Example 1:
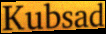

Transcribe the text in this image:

Kubsad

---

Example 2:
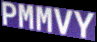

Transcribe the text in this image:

PMMVY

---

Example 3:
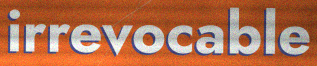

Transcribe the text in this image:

irrevocable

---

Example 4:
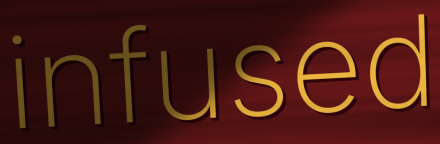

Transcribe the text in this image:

infused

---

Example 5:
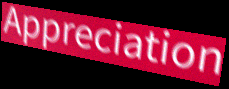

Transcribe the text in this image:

Appreciation